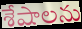
శేషాలను